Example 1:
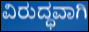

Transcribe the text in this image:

ವಿರುದ್ಧವಾಗಿ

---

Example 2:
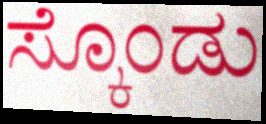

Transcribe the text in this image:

ಸ್ಕೊಂಡು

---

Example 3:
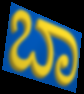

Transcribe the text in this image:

ಬಾ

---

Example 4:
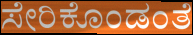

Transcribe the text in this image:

ಸೇರಿಕೊಂಡಂತೆ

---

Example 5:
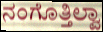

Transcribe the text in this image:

ನಂಗೊತ್ತಿಲ್ವಾ